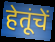
हेतूंचें